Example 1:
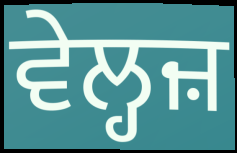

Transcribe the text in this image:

ਵੇਲ੍ਹਜ਼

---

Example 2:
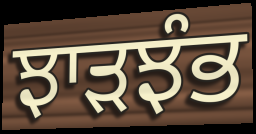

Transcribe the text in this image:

ਝਾੜਝੰਭ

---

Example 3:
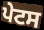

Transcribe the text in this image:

ਪੇਟਸ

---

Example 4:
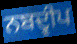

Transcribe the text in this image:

ਨਬਦ੍ਵੀਪ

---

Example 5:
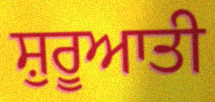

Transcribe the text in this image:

ਸ਼ੁਰੂਆਤੀ